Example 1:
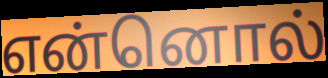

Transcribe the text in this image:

என்னொல்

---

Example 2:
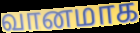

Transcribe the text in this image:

வானமாக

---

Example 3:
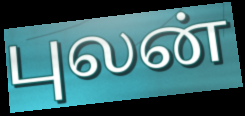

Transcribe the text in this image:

புலன்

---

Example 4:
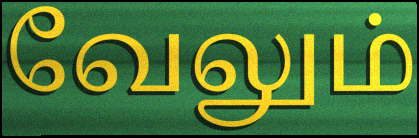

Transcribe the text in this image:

வேலும்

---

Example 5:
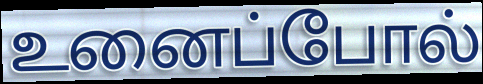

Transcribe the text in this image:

உனைப்போல்